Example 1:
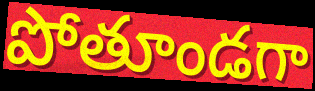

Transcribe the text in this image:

పోతూండగా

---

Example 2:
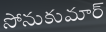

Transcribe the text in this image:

సోనుకుమార్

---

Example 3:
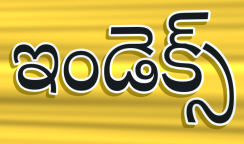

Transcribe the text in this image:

ఇండెక్స్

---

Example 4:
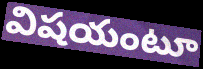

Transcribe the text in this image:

విషయంటూ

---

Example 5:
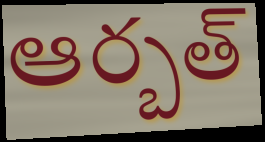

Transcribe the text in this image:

ఆర్బత్